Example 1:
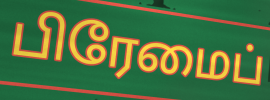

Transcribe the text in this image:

பிரேமைப்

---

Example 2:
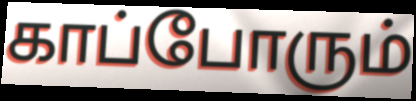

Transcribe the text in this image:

காப்போரும்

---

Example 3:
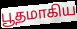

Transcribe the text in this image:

பூதமாகிய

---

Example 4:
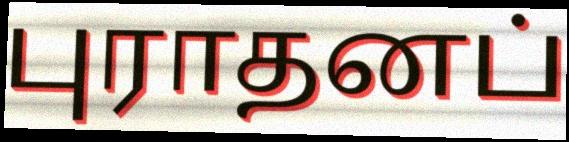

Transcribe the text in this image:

புராதனப்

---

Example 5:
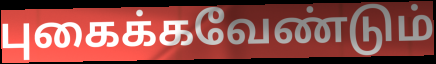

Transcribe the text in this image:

புகைக்கவேண்டும்